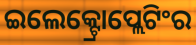
ଇଲେକ୍ଟ୍ରୋପ୍ଲେଟିଂର